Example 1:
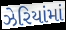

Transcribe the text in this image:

ઝેરિયાંમાં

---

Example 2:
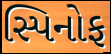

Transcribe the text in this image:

સ્પિનોફ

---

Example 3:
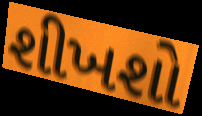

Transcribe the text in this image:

શીખશો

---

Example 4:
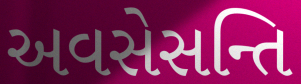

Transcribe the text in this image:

અવસેસન્તિ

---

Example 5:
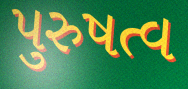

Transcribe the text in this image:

પુરુષત્વ